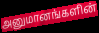
அனுமானங்களின்